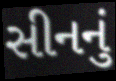
સીનનું